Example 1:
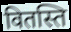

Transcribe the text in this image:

वितस्ति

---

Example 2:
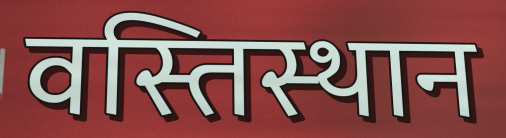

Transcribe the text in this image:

वस्तिस्थान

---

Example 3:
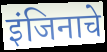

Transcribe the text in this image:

इंजिनाचे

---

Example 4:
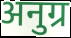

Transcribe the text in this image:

अनुग्र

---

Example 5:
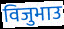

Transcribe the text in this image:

विजुभाउ